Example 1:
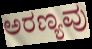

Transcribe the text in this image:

ಅರಣ್ಯವು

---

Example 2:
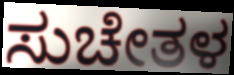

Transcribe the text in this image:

ಸುಚೇತಳ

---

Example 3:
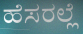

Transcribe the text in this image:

ಹೆಸರಲ್ಲೆ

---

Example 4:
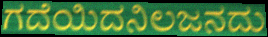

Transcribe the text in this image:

ಗದೆಯಿದನಿಲಜನದು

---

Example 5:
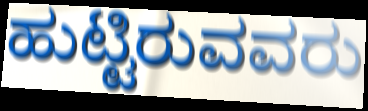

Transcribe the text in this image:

ಹುಟ್ಟಿರುವವರು